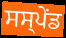
ਸਸ੍ਪੇੰਡ